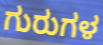
ಗುರುಗಳ